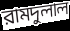
রামদুলাল